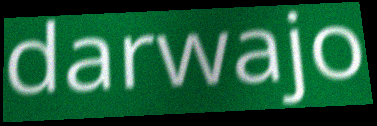
darwajo